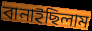
বানাইছিলাম